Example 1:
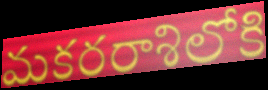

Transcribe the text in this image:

మకరరాశిలోకి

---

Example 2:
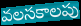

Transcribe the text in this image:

వలసకాలపు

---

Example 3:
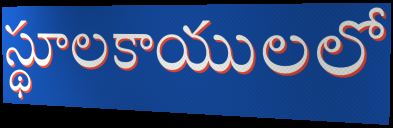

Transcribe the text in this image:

స్థూలకాయులలో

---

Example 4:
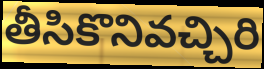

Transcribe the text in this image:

తీసికొనివచ్చిరి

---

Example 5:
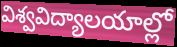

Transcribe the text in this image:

విశ్వవిద్యాలయాల్లో